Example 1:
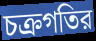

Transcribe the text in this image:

চক্রগতির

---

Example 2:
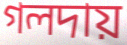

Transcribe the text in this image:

গলদায়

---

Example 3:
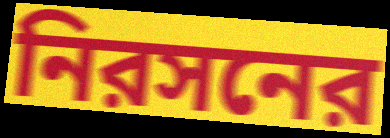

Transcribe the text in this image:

নিরসনের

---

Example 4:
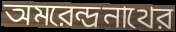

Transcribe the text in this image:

অমরেন্দ্রনাথের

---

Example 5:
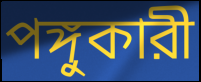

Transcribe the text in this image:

পঙ্গুকারী